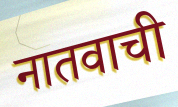
नातवाची